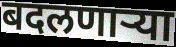
बदलणाऱ्या